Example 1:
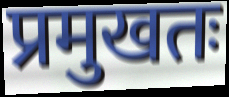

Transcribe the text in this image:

प्रमुखतः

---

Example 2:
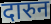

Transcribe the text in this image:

दारुन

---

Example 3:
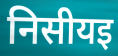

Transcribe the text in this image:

निसीयइ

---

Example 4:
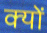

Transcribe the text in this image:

क्‍यों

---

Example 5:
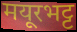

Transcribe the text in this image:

मयूरभट्ट